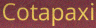
Cotapaxi